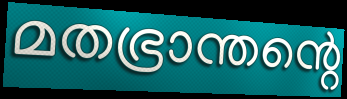
മതഭ്രാന്തന്റെ